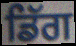
ਡਿੱਗ